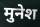
मुनेश